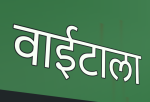
वाईटाला